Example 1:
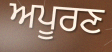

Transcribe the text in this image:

ਅਪੂਰਣ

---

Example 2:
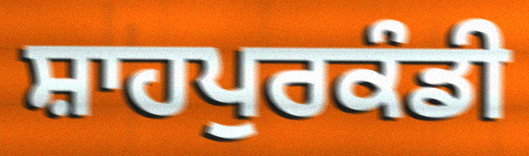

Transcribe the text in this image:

ਸ਼ਾਹਪੁਰਕੰਡੀ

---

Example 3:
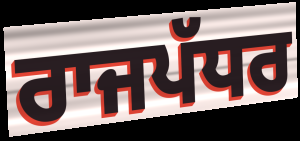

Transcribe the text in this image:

ਰਾਜਪੱਧਰ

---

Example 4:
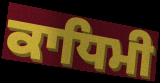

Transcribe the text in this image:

ਕਾਧਿਮੀ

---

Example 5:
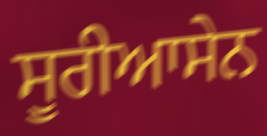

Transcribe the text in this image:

ਸੂਰੀਆਸੇਨ